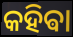
କହିଵା